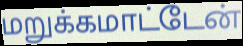
மறுக்கமாட்டேன்